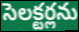
సెలక్టర్లను